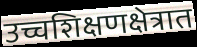
उच्चशिक्षणक्षेत्रात